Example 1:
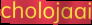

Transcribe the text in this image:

cholojaai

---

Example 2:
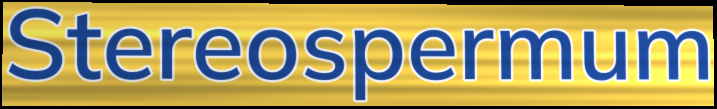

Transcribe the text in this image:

Stereospermum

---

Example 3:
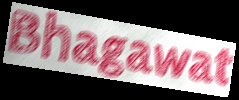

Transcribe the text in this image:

Bhagawat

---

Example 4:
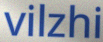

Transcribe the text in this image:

vilzhi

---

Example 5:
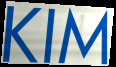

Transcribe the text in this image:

KIM